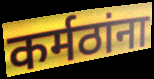
कर्मठांना